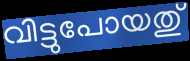
വിട്ടുപോയതു്